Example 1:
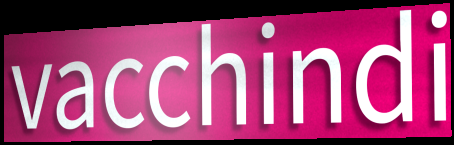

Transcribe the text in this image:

vacchindi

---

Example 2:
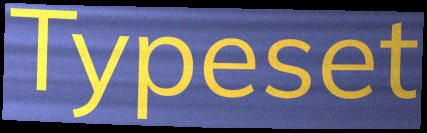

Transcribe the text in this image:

Typeset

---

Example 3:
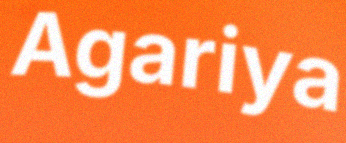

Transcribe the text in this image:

Agariya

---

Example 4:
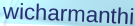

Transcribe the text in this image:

wicharmanthi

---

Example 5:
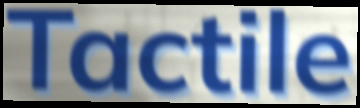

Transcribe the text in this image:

Tactile